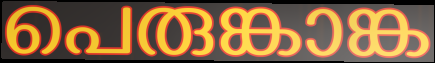
പെരുങ്കാങ്ക